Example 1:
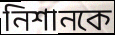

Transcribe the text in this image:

নিশানকে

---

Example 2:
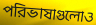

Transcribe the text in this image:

পরিভাষাগুলোও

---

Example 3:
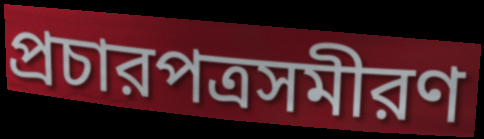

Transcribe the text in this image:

প্রচারপত্রসমীরণ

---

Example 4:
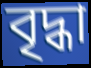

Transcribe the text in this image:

বৃদ্ধা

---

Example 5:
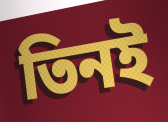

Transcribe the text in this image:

তিনই